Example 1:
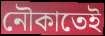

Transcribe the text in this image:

নৌকাতেই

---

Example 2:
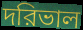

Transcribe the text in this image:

দরিভাল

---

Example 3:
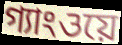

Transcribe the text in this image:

গ্যাংওয়ে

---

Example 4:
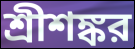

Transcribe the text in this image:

শ্রীশঙ্কর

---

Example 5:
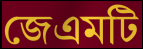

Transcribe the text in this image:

জেএমটি